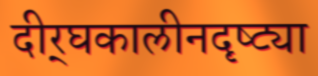
दीर्घकालीनदृष्ट्या